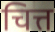
चित्त